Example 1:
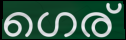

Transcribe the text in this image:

ഗെര്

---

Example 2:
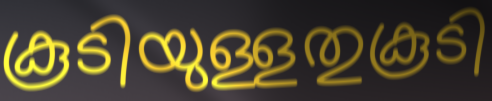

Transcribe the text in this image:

കൂടിയുള്ളതുകൂടി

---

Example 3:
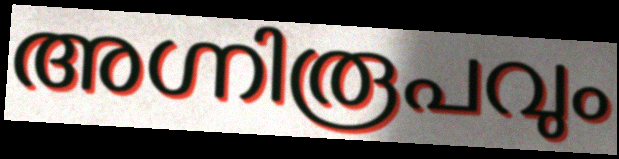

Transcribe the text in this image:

അഗ്നിരൂപവും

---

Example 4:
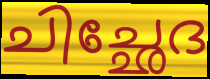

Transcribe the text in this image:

ചിച്ഛേദ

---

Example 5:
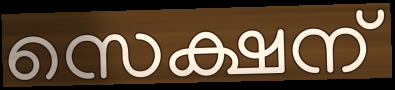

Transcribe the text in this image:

സെക്ഷന്